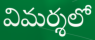
విమర్శలో